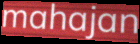
mahajan